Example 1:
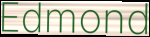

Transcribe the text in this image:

Edmond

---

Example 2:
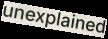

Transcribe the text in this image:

unexplained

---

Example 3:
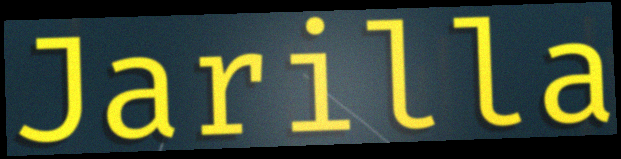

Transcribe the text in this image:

Jarilla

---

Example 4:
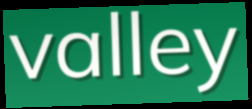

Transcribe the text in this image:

valley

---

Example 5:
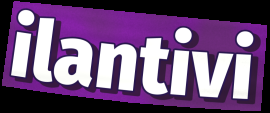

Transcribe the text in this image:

ilantivi